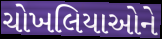
ચોખલિયાઓને